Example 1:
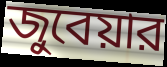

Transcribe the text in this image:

জুবেয়ার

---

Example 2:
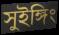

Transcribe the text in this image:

সুইঙ্গিং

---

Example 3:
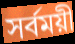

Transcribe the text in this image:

সর্বময়ী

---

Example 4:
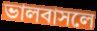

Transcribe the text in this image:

ভালবাসলে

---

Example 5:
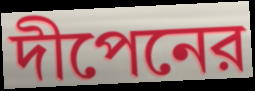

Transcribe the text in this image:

দীপেনের